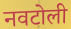
नवटोली